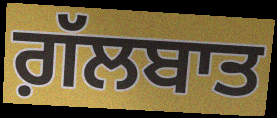
ਗ਼ੱਲਬਾਤ